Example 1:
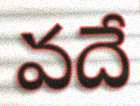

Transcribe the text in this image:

వదే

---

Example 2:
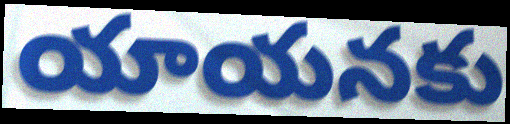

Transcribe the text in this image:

యాయనకు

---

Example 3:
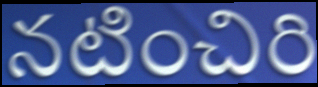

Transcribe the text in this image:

నటించిరి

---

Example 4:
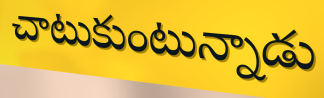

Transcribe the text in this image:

చాటుకుంటున్నాడు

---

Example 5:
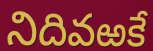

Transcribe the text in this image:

నిదివఱకే